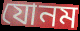
যোনম